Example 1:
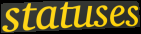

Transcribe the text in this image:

statuses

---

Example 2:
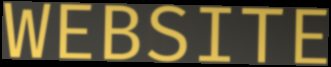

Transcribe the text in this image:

WEBSITE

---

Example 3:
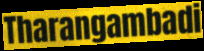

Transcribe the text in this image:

Tharangambadi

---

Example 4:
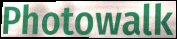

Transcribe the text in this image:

Photowalk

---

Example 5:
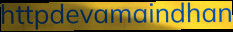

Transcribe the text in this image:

httpdevamaindhan